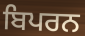
ਬਿਪਰਨ